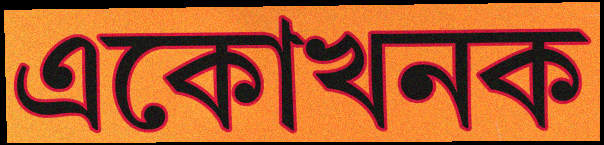
একোখনক